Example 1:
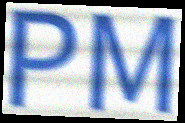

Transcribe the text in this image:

PM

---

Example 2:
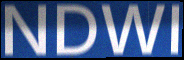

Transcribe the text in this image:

NDWI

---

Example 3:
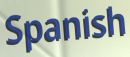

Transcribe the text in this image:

Spanish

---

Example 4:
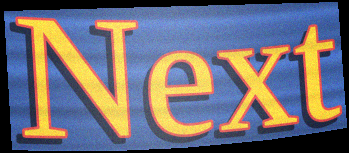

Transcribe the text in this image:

Next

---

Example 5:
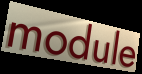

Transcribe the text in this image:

module